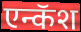
एन्कॅश